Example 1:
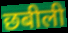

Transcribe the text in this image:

छबीली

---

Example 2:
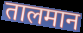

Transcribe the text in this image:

तालमान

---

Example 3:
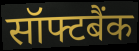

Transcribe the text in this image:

सॉफ्टबैंक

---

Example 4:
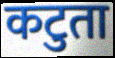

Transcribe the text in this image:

कटुता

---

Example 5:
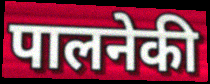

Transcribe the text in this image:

पालनेकी